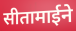
सीतामाईने